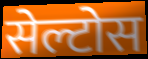
सेल्टोस